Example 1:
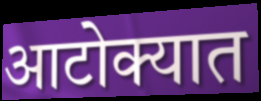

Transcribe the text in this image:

आटोक्‍यात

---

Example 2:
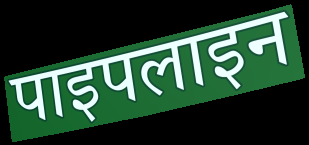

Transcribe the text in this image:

पाइपलाइन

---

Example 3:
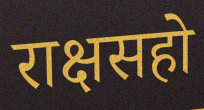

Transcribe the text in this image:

राक्षसहो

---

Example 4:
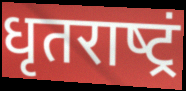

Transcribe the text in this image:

धृतराष्ट्रं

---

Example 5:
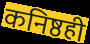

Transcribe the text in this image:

कनिष्ठही